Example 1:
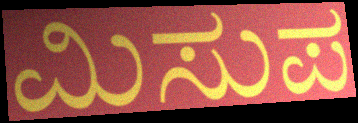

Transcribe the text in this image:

ಮಿಸುಪ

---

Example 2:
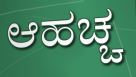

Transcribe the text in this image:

ಆಹಚ್ಚ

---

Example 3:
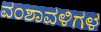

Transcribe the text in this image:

ವಂಶಾವಳಿಗಳ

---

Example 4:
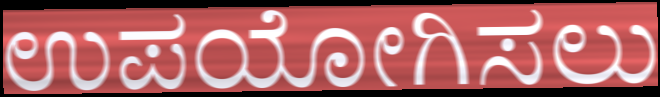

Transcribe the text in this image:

ಉಪಯೋಗಿಸಲು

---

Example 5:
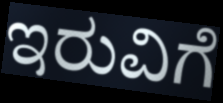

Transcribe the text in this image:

ಇರುವಿಗೆ